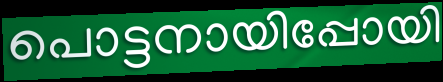
പൊട്ടനായിപ്പോയി